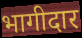
भागीदार